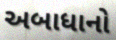
અબાધાનો